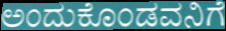
ಅಂದುಕೊಂಡವನಿಗೆ